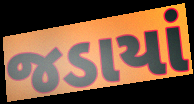
જડાયાં